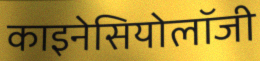
काइनेसियोलॉजी